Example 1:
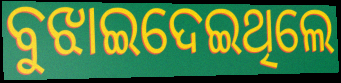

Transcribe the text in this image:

ବୁଝାଇଦେଇଥିଲେ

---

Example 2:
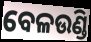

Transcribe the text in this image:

ବେଳଉଣ୍ଡି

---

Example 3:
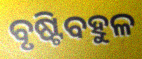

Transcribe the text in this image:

ବୃଷ୍ଟିବହୁଳ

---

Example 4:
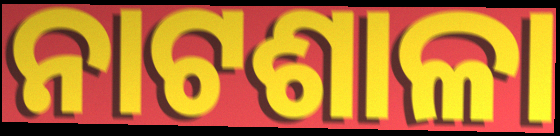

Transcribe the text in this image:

ନାଟଶାଳା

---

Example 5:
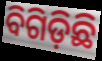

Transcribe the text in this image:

ବିଗିଡ଼ିଛି